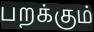
பறக்கும்